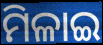
ମିଳାଇ